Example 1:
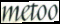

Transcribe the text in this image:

metoo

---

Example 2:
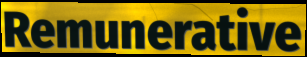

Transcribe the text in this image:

Remunerative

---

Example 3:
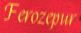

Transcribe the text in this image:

Ferozepur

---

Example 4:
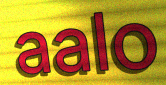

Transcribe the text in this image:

aalo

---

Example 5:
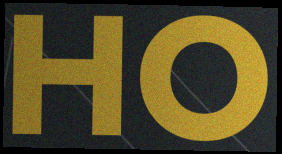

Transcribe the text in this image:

HO